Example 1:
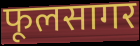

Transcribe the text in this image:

फूलसागर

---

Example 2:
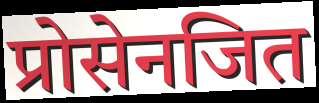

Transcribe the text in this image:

प्रोसेनजित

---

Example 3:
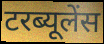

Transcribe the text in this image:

टरब्यूलेंस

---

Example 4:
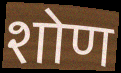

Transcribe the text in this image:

शोण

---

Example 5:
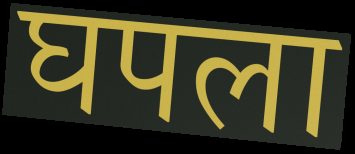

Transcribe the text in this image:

घपला